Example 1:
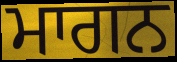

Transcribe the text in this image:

ਮਾਗਨ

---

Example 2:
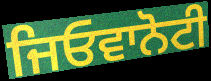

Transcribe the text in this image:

ਜਿਓਵਾਨੋਟੀ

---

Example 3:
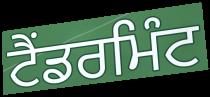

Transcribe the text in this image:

ਟੈਂਡਰਮਿੰਟ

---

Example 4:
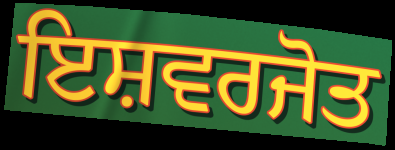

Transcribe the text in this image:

ਇਸ਼ਵਰਜੋਤ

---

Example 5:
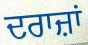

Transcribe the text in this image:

ਦਰਾਜ਼ਾਂ